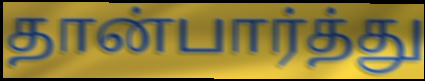
தான்பார்த்து